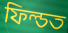
ফিল্ডত